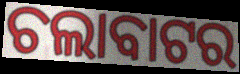
ଚଲାବାଟର